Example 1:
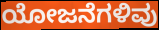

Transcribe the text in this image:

ಯೋಜನೆಗಳಿವು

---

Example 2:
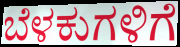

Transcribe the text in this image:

ಬೆಳಕುಗಳಿಗೆ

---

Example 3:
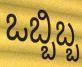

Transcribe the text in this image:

ಒಬ್ಬಿಬ್ಬ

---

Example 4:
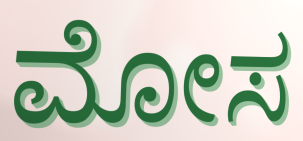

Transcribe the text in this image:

ಮೋಸ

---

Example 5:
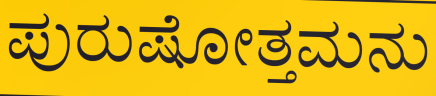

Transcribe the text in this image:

ಪುರುಷೋತ್ತಮನು